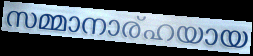
സമ്മാനാര്ഹയായ